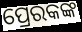
ପ୍ରେରକଙ୍କ